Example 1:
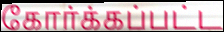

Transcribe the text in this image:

கோர்க்கப்பட்ட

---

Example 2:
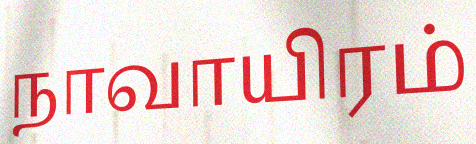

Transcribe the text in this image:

நாவாயிரம்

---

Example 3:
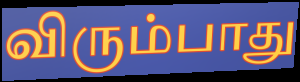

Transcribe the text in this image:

விரும்பாது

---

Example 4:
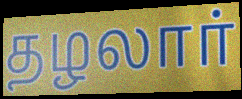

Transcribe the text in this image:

தழலார்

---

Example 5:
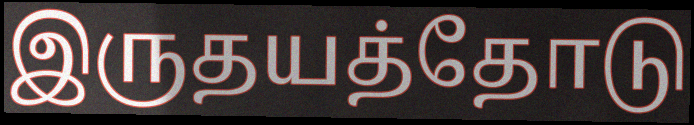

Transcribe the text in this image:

இருதயத்தோடு